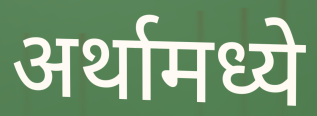
अर्थामध्ये